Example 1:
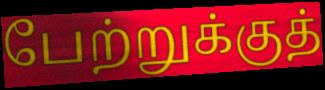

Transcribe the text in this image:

பேற்றுக்குத்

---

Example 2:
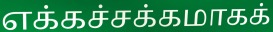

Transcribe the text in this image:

எக்கச்சக்கமாகக்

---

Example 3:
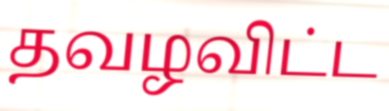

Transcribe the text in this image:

தவழவிட்ட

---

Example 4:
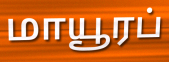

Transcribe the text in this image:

மாயூரப்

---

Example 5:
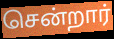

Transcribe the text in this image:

சென்றார்